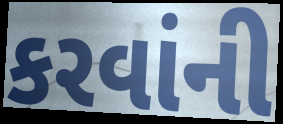
કરવાંની